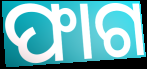
ଫାଗ